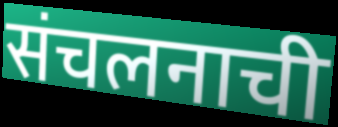
संचलनाची